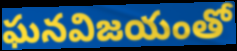
ఘనవిజయంతో